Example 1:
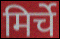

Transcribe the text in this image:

मिर्चे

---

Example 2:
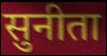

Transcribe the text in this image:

सुनीता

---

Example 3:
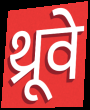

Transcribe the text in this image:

थ्रूवे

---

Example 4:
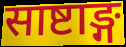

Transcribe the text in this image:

साष्टाङ्ग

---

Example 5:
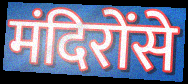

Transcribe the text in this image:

मंदिरोंसे